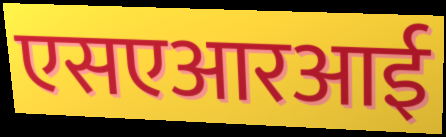
एसएआरआई